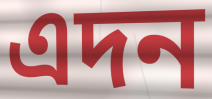
এদন